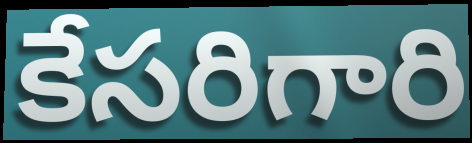
కేసరిగారి